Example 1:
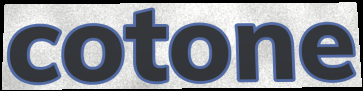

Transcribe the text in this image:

cotone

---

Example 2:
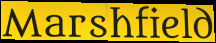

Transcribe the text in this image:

Marshfield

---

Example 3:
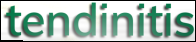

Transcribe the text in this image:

tendinitis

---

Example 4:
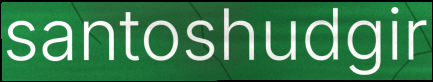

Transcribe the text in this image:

santoshudgir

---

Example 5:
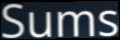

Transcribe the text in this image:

Sums